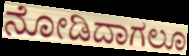
ನೋಡಿದಾಗಲೂ